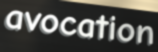
avocation